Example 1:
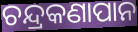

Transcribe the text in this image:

ଚନ୍ଦ୍ରକଣାପାନ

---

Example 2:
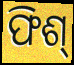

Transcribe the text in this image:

ଫିଶ୍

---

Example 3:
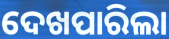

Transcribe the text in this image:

ଦେଖପାରିଲା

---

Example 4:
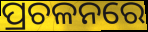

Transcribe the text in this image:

ପ୍ରଚଳନରେ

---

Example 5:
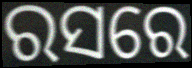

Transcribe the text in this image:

ରସରେ